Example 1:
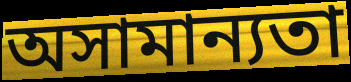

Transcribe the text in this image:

অসামান্যতা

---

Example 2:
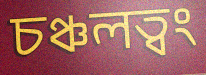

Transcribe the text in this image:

চঞ্চলত্বং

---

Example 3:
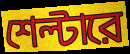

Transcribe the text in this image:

শেল্টারে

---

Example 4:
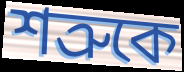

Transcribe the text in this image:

শত্রুকে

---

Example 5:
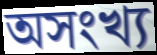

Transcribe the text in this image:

অসংখ্য